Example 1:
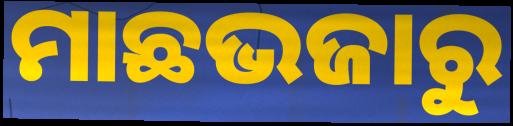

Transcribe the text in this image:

ମାଛଭଜାରୁ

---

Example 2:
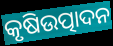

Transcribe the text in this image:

କୃଷିଉତ୍ପାଦନ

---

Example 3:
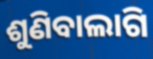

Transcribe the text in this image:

ଶୁଣିବାଲାଗି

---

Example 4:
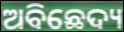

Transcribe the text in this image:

ଅବିଛେଦ୍ୟ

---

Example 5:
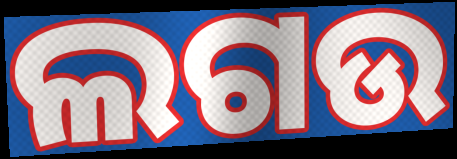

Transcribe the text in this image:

ଲଗଉ